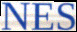
NES